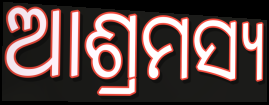
ଆଶ୍ରମସ୍ୟ